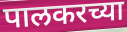
पालकरच्या